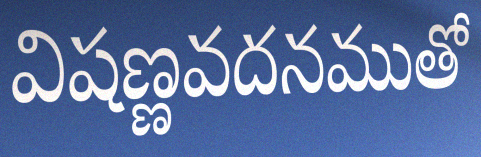
విషణ్ణవదనముతో